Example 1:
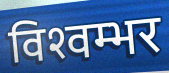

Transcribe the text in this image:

विश्वम्भर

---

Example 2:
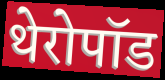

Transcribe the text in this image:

थेरोपॉड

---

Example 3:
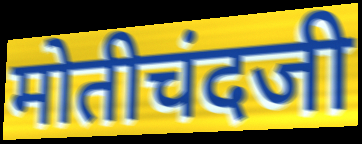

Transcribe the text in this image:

मोतीचंदजी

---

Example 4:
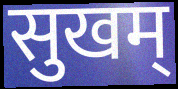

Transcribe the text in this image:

सुखम्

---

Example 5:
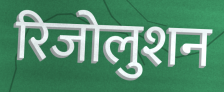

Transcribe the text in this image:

रिजोलुशन